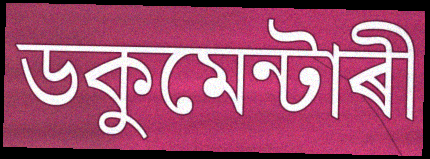
ডকুমেন্টাৰী